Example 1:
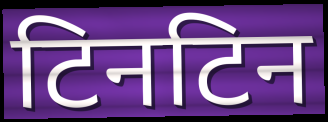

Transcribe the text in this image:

टिनटिन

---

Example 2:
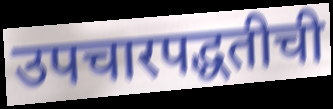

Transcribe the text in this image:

उपचारपद्धतीची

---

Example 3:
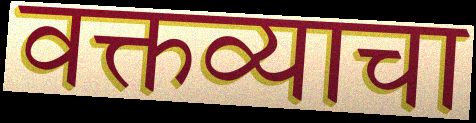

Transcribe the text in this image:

वक्तव्याचा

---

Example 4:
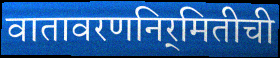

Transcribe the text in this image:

वातावरणनिर्मितीची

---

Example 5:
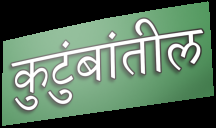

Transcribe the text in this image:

कुटुंबांतील